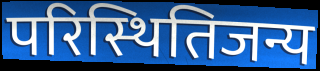
परिस्थितिजन्य